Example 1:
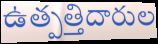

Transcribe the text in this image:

ఉత్పత్తిదారుల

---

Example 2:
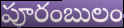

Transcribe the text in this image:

పూరంబులం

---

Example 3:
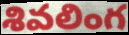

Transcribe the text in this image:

శివలింగ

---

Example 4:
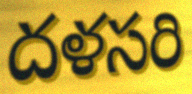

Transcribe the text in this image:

దళసరి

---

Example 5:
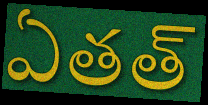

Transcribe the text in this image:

ఏతత్